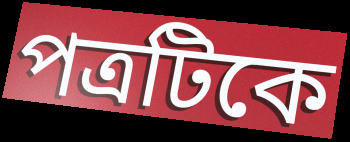
পত্রটিকে